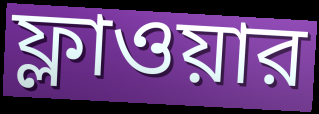
ফ্লাওয়ার